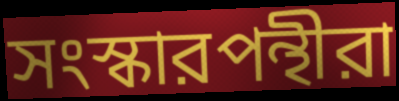
সংস্কারপন্থীরা